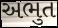
અભુત